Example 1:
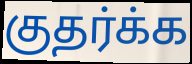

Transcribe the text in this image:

குதர்க்க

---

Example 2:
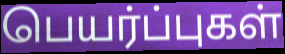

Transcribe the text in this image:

பெயர்ப்புகள்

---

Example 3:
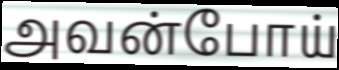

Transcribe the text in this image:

அவன்போய்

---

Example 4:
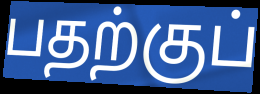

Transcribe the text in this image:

பதற்குப்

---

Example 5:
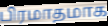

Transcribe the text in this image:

பிரமாதமாக